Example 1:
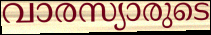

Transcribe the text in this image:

വാരസ്യാരുടെ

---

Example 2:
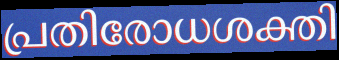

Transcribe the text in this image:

പ്രതിരോധശക്തി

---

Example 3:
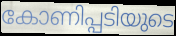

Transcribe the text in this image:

കോണിപ്പടിയുടെ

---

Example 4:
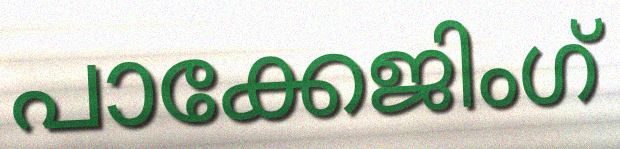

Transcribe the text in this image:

പാക്കേജിംഗ്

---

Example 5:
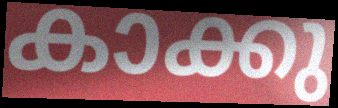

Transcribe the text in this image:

കാക്കു